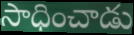
సాధించాడు